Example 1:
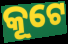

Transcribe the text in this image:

କୂଟେ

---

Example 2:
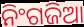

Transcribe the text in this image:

ନିଂଗଜିଆ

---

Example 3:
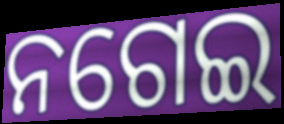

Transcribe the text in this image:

ନଗେଇ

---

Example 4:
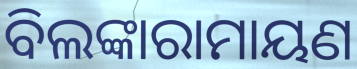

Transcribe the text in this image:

ବିଲଙ୍କାରାମାୟଣ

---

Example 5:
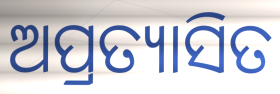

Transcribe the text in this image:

ଅପ୍ରତ୍ୟାସିତ